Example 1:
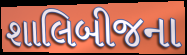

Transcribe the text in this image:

શાલિબીજના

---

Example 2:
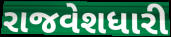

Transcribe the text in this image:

રાજવેશધારી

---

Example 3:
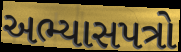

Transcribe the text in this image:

અભ્યાસપત્રો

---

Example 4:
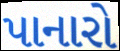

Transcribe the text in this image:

પાનારો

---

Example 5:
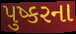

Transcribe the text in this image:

પુષ્કરના